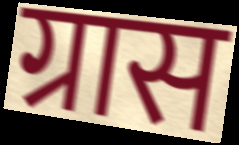
ग्रास